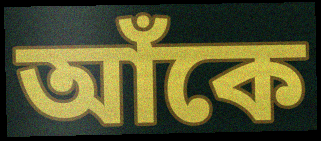
আঁকে